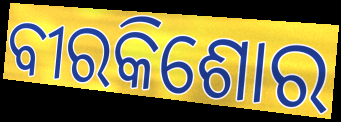
ବୀରକିଶୋର